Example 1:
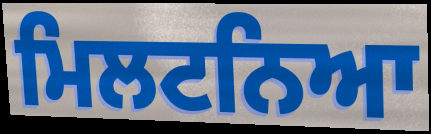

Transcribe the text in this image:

ਮਿਲਟਨਿਆ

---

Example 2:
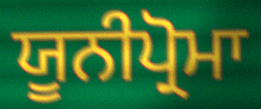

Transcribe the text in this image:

ਯੂਨੀਪ੍ਰੋਮਾ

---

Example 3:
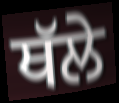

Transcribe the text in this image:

ਥੱਲੇ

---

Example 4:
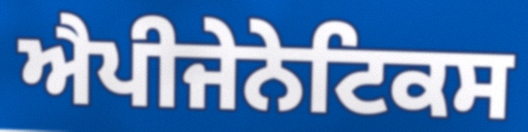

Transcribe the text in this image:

ਐਪੀਜੇਨੇਟਿਕਸ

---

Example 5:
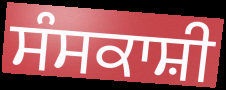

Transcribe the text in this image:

ਸੰਸਕਾਸ਼ੀ